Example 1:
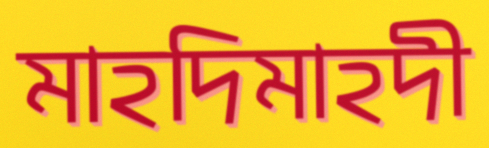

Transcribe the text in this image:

মাহদিমাহদী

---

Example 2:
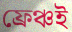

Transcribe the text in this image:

ফ্রেঞ্চই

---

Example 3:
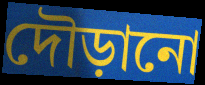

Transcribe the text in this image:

দৌড়ানো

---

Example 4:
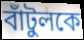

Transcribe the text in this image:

বাঁটুলকে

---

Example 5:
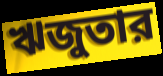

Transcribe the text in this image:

ঋজুতার